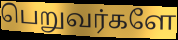
பெறுவர்களே